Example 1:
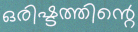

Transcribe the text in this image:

ഒരിഷ്ടത്തിന്റെ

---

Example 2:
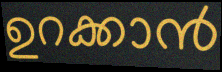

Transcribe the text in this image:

ഉറക്കാൻ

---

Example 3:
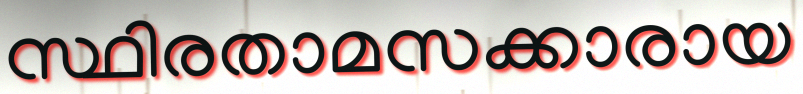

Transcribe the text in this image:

സ്ഥിരതാമസക്കാരായ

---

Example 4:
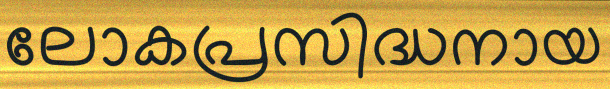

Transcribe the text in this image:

ലോകപ്രസിദ്ധനായ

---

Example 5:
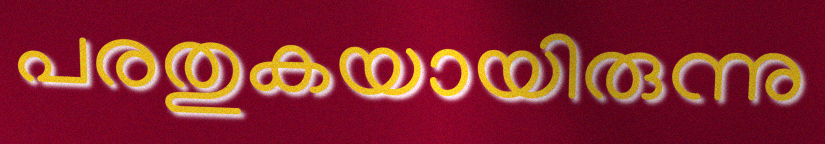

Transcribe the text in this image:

പരതുകയായിരുന്നു